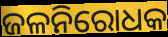
ଜଳନିରୋଧକ